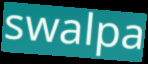
swalpa